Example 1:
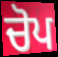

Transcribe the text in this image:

ਚੋਪ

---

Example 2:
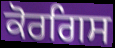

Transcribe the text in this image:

ਕੋਰਗਿਸ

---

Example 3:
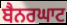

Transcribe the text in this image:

ਬੈਨਰਘਾਟ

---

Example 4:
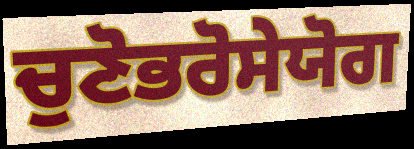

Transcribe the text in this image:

ਚੁਣੋਭਰੋਸੇਯੋਗ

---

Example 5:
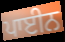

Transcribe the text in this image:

ਪਾਈਨ